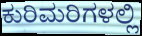
ಕುರಿಮರಿಗಳಲ್ಲಿ